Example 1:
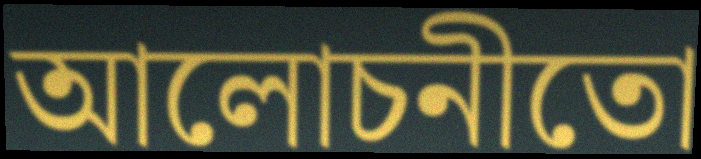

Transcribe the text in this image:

আলোচনীতো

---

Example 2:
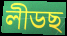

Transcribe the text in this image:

লীডছ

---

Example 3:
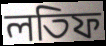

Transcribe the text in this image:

লতিফ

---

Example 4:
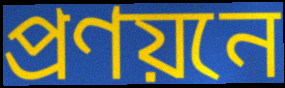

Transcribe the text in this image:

প্ৰণয়নে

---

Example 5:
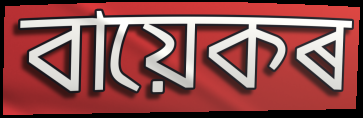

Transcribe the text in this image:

বায়েকৰ